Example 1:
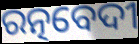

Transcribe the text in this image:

ରତ୍ନବେଦୀ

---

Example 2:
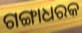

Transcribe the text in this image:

ଗଙ୍ଗାଧରକ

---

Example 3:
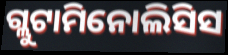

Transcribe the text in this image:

ଗ୍ଲୁଟାମିନୋଲିସିସ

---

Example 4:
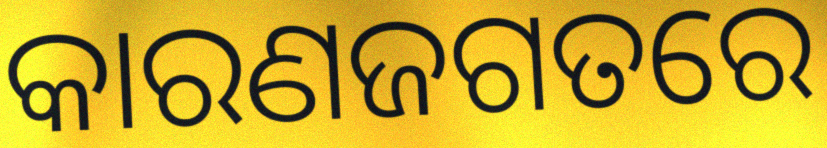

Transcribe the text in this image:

କାରଣଜଗତରେ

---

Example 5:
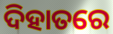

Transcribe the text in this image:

ଦିହାତରେ